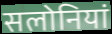
सलोनियां